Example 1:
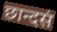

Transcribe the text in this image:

छान्दसं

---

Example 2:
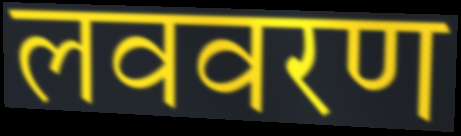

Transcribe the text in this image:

लववरण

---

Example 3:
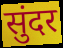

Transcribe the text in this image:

सुंदर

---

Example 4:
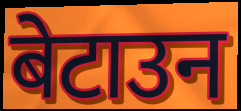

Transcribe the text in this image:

बेटाउन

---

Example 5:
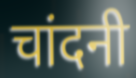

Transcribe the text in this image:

चांदनी